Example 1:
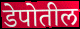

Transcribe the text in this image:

डेपोतील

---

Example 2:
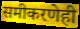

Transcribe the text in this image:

समीकरणेही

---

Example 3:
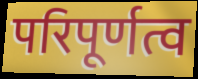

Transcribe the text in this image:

परिपूर्णत्व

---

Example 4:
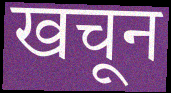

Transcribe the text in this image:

खचून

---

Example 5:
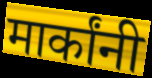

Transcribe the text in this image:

मार्कांनी